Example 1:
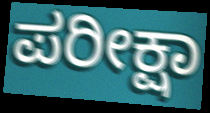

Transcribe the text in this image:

ಪರೀಕ್ಷಾ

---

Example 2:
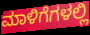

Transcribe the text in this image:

ಮಾಳಿಗೆಗಳಲ್ಲಿ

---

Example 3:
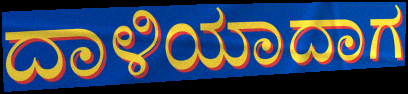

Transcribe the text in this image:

ದಾಳಿಯಾದಾಗ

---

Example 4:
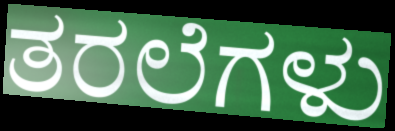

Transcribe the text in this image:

ತರಲೆಗಳು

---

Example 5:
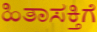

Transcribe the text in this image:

ಹಿತಾಸಕ್ತಿಗೆ